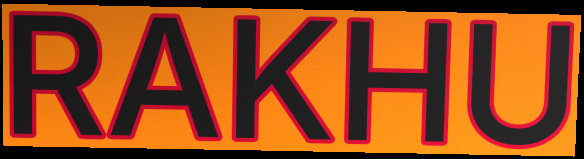
RAKHU